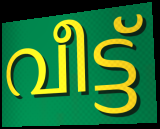
വീട്ട്